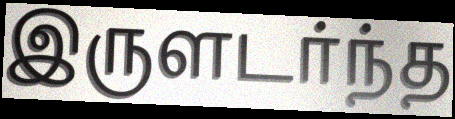
இருளடர்ந்த